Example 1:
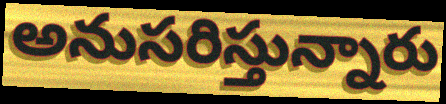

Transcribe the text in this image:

అనుసరిస్తున్నారు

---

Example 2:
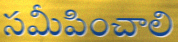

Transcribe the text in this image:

సమీపించాలి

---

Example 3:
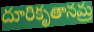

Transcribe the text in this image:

దూరికృతానమ్ర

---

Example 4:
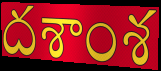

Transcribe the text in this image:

దశాంశ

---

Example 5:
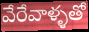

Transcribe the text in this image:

వేరేవాళ్ళతో